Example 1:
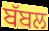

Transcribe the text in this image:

ਬੱਬਲ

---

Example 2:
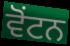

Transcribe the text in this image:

ਵੋਂਟਨ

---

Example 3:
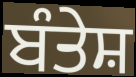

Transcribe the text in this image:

ਬੰਤੇਸ਼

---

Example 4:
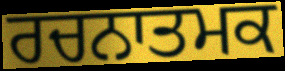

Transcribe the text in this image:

ਰਚਨਾਤਮਕ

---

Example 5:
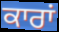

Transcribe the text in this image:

ਕਾਰਾਂ